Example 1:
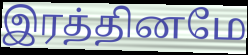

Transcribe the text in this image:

இரத்தினமே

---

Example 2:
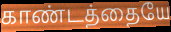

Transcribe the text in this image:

காண்டத்தையே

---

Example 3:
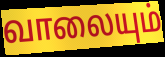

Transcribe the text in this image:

வாலையும்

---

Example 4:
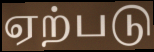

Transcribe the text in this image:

ஏற்படு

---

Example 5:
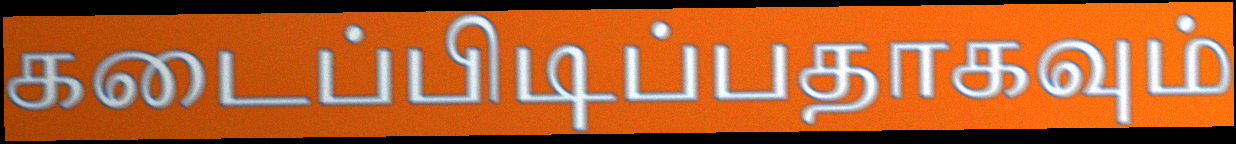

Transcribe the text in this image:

கடைப்பிடிப்பதாகவும்